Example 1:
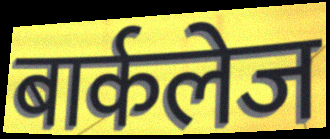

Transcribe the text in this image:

बार्कलेज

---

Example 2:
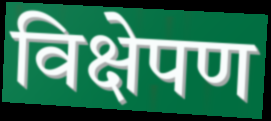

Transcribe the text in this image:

विक्षेपण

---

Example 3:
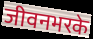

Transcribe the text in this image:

जीवनभरके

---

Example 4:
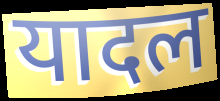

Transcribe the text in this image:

यादल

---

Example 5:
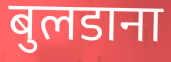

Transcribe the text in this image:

बुलडाना